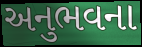
અનુભવના